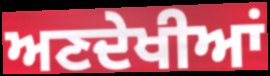
ਅਣਦੇਖੀਆਂ